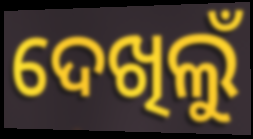
ଦେଖିଲୁଁ